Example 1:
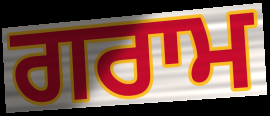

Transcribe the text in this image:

ਗਰਾਮ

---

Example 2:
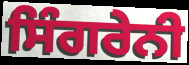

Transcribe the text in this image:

ਸਿੰਗਰੇਨੀ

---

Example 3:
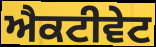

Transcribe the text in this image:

ਐਕਟੀਵੇਟ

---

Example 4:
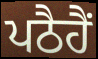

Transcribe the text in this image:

ਪਠੈਹੈਂ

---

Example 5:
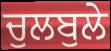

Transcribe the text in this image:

ਚੁਲਬੁਲੇ